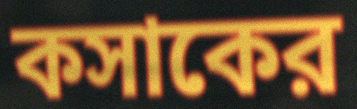
কসাকের